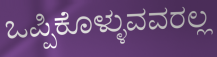
ಒಪ್ಪಿಕೊಳ್ಳುವವರಲ್ಲ